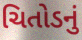
ચિતોડનું